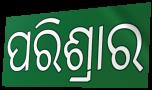
ପରିଶ୍ରାର